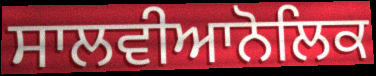
ਸਾਲਵੀਆਨੋਲਿਕ